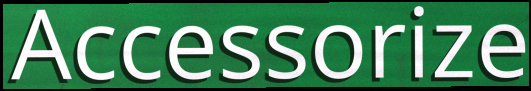
Accessorize